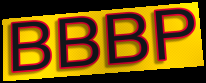
BBBP